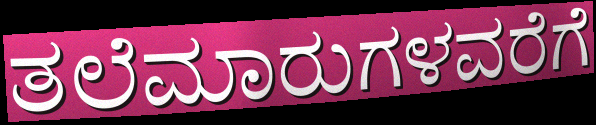
ತಲೆಮಾರುಗಳವರೆಗೆ